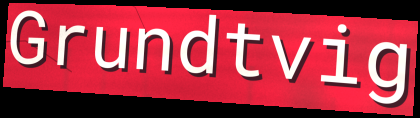
Grundtvig